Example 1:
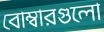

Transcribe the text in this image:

বোম্বারগুলো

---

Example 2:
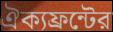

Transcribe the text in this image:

ঐক্যফ্রন্টের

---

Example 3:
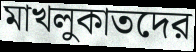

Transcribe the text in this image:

মাখলুকাতদের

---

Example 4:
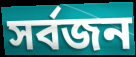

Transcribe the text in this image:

সর্বজন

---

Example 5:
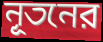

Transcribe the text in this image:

নূতনের